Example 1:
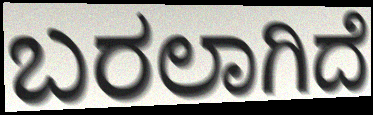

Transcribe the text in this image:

ಬರಲಾಗಿದೆ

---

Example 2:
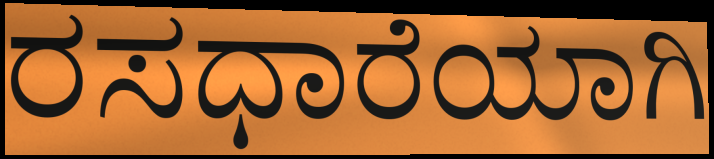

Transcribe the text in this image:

ರಸಧಾರೆಯಾಗಿ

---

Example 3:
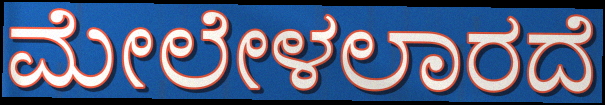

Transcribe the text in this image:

ಮೇಲೇಳಲಾರದೆ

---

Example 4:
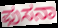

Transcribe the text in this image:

ಫುಸನಾ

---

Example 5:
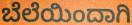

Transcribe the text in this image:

ಬೆಲೆಯಿಂದಾಗಿ